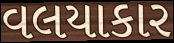
વલયાકાર